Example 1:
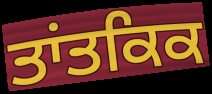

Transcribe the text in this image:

ਤਾਂਤਕਿਕ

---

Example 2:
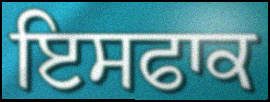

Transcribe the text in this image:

ਇਸਫਾਕ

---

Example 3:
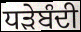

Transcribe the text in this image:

ਧੜੇਬੰਦੀ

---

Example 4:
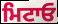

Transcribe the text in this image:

ਮਿਟਾਓ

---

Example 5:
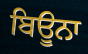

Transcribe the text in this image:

ਬਿਊਨਾ